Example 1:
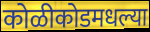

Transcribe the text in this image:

कोळीकोडमधल्या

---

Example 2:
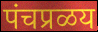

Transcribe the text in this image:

पंचप्रळय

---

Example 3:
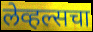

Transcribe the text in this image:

लेव्हल्सचा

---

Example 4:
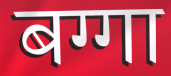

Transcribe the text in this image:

बग्गा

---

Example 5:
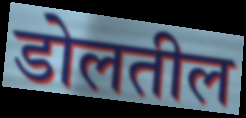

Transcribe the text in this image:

डोलतील